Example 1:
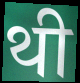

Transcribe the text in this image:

थी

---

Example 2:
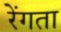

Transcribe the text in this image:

रेंगता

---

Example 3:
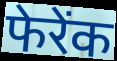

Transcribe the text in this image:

फेरेंक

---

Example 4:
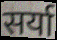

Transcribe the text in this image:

सर्या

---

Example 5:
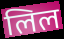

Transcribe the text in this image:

लिल